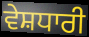
ਵੇਸ਼ਧਾਰੀ